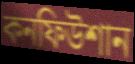
কনফিউশান